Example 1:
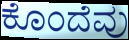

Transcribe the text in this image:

ಕೊಂದೆವು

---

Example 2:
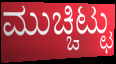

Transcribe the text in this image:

ಮುಚ್ಚಿಟ್ಟು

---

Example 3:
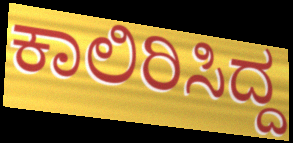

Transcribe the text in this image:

ಕಾಲಿರಿಸಿದ್ದ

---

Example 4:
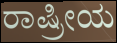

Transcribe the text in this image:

ರಾಷ್ರೀಯ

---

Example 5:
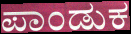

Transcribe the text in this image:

ಪಾಂಡುಕ